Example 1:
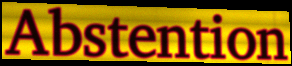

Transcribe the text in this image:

Abstention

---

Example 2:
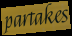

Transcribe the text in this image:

partakes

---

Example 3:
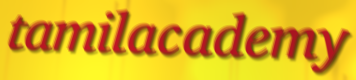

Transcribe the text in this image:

tamilacademy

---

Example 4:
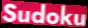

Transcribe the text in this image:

Sudoku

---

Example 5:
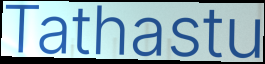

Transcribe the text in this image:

Tathastu